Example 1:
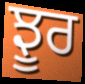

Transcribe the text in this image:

ਝੂਰ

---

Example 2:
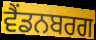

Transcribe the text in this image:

ਵੈਂਡਨਬਰਗ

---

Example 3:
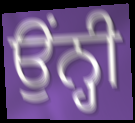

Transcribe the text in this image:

ਉਂਨ੍ਹੀ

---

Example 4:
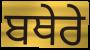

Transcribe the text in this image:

ਬਥੇਰੇ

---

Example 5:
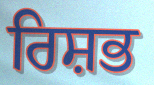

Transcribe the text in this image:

ਰਿਸ਼ਭ